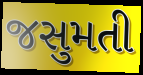
જસુમતી